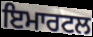
ਇਮਾਰਟਲ